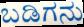
ಬಡಿಗನು